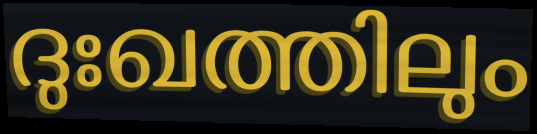
ദുഃഖത്തിലും